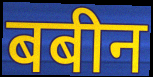
बबीन